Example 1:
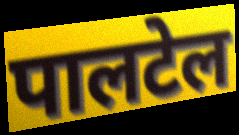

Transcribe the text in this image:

पालटेल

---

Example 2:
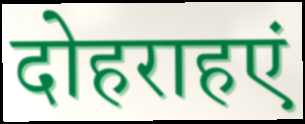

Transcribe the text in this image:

दोहराहएं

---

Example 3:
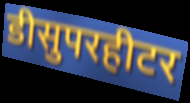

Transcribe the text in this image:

डीसुपरहीटर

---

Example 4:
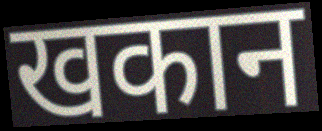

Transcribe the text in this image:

खकान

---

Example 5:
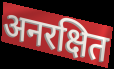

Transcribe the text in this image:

अनरक्षित